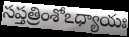
సప్తత్రింశోఽధ్యాయః